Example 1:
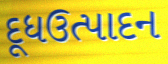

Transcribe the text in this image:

દૂધઉત્પાદન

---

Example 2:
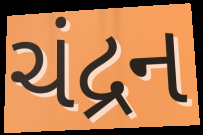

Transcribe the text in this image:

ચંદ્રન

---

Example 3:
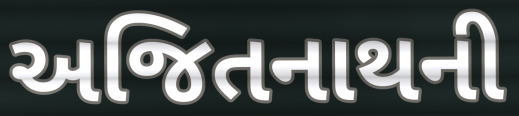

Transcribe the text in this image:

અજિતનાથની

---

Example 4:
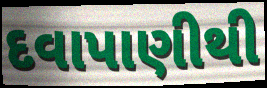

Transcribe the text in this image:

દવાપાણીથી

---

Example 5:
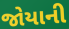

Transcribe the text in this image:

જોયાની